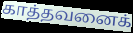
காத்தவனைக்